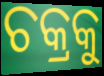
ଚକ୍ରକୁ